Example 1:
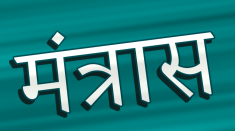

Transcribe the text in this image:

मंत्रास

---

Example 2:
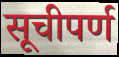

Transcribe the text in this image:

सूचीपर्ण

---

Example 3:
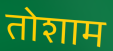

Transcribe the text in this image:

तोशाम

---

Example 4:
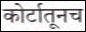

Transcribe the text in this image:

कोर्टातूनच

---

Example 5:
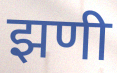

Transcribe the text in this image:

झणी